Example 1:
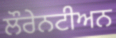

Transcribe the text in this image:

ਲੌਰੇਨਟੀਅਨ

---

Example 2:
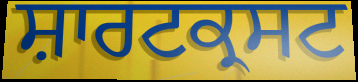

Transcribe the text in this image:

ਸ਼ਾਰਟਕ੍ਰਸਟ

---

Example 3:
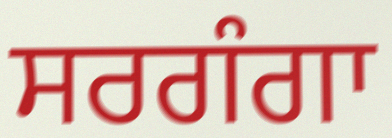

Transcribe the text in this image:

ਸਰਗੰਗਾ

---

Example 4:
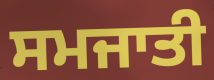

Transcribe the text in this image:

ਸਮਜਾਤੀ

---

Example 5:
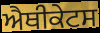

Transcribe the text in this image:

ਐਥੀਕੇਟਸ